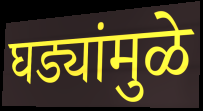
घड्यांमुळे